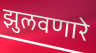
झुलवणारे